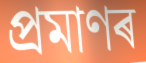
প্ৰমাণৰ